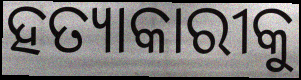
ହତ୍ୟାକାରୀକୁ